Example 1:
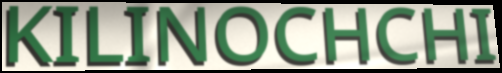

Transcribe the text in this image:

KILINOCHCHI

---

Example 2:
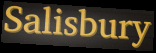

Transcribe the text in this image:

Salisbury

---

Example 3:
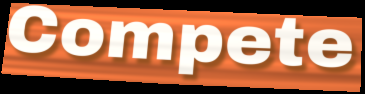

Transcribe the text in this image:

Compete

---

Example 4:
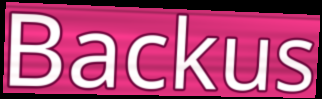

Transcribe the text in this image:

Backus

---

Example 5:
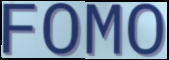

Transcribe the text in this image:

FOMO